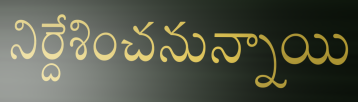
నిర్దేశించనున్నాయి